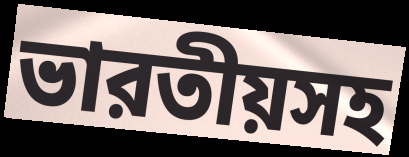
ভারতীয়সহ